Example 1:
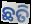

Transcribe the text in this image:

ଛତି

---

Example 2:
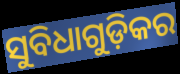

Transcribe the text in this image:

ସୁବିଧାଗୁଡ଼ିକର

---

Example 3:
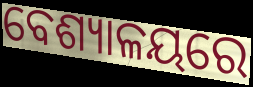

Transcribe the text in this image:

ବେଶ୍ୟାଳୟରେ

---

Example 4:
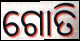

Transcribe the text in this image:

ଗୋତି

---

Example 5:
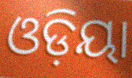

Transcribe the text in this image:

ଓଡ଼ିୟା